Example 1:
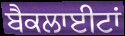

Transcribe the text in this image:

ਬੈਕਲਾਈਟਾਂ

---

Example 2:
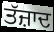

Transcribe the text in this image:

ਤੱਜ਼ਾਦ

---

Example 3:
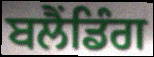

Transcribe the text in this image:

ਬਲੈਂਡਿੰਗ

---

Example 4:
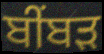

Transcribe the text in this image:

ਬੀਂਬੜ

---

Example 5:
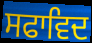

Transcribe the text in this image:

ਸਫਾਵਿਦ